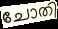
ചോതി